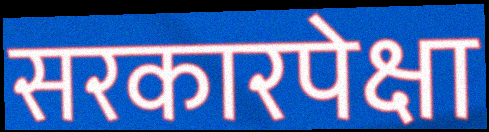
सरकारपेक्षा